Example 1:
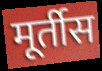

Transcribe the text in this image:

मूर्तीस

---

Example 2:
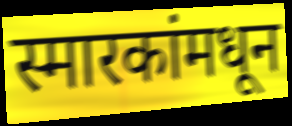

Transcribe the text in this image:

स्मारकांमधून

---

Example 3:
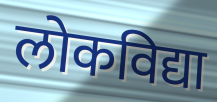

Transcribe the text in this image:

लोकविद्या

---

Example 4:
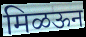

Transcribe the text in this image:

मिळऊन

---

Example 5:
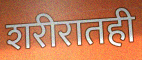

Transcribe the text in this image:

शरीरातही